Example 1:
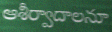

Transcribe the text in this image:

ఆశీర్వాదాలనూ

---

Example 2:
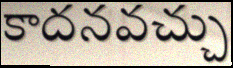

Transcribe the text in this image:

కాదనవచ్చు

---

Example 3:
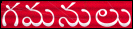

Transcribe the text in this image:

గమనులు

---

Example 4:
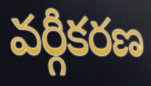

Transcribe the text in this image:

వర్గీకరణ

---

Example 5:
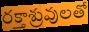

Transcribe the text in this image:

రక్తాశ్రువులతో